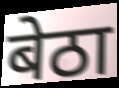
बेठा